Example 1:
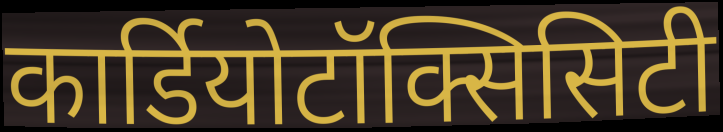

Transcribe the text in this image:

कार्डियोटॉक्सिसिटी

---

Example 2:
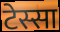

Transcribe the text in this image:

टेस्सा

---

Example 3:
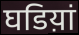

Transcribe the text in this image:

घडिय़ां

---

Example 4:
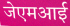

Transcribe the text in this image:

जेएमआई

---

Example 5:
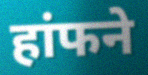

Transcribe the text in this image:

हांफने